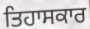
ਤਿਹਾਸਕਾਰ